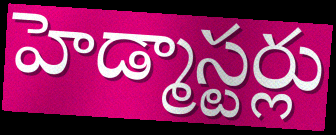
హెడ్మాస్టర్లు